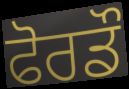
ਫੋਰਡੌ